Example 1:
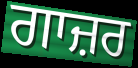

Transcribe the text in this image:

ਗਾਜ਼ਰ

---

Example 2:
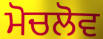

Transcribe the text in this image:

ਮੋਚਲੋਵ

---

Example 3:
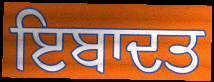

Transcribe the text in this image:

ਇਬਾਦਤ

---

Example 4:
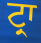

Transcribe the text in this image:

ਟ੍ਰਾ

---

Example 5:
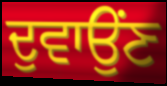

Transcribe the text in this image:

ਦੁਵਾਉਂਣ